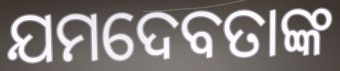
ଯମଦେବତାଙ୍କ